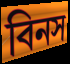
বিনস